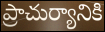
ప్రాచుర్యానికి